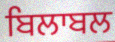
ਬਿਲਾਬਲ